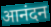
आनंदन